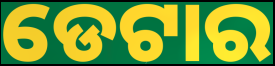
ଡେଟାର